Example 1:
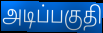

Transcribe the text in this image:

அடிப்பகுதி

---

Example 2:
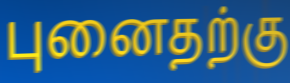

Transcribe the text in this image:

புனைதற்கு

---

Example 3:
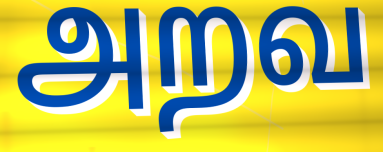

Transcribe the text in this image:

அறவ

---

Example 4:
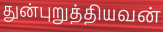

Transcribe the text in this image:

துன்புறுத்தியவன்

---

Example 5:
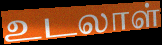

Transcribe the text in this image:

உடலாள்